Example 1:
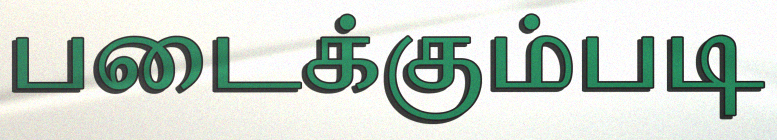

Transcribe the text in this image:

படைக்கும்படி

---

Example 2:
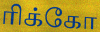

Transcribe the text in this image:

ரிக்கோ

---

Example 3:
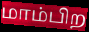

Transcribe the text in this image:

மாம்பிற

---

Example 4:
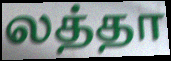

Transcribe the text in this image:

லத்தா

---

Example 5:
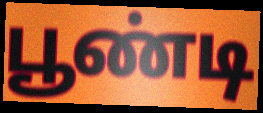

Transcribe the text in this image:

பூண்டி